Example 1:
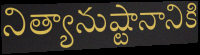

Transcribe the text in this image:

నిత్యానుష్టానానికి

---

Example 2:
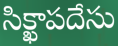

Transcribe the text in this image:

సిక్ఖాపదేసు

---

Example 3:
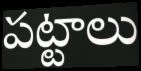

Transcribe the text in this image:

పట్టాలు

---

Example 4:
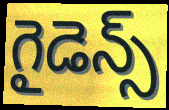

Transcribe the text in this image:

గైడెన్స్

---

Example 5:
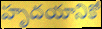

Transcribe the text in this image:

హృదయానికో